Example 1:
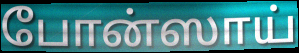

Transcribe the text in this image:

போன்ஸாய்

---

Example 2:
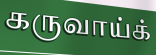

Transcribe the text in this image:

கருவாய்க்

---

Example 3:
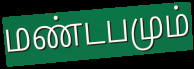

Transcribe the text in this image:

மண்டபமும்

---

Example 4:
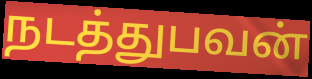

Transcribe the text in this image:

நடத்துபவன்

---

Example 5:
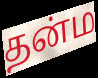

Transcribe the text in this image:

தன்ம